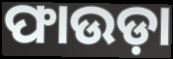
ଫାଉଡ଼ା